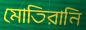
মোতিরানি